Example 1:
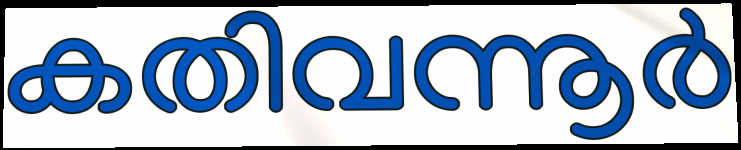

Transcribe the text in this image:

കതിവന്നൂർ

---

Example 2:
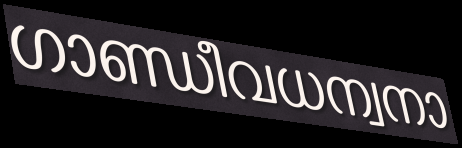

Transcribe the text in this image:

ഗാണ്ഡീവധന്വനാ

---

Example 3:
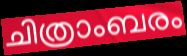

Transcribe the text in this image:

ചിത്രാംബരം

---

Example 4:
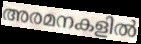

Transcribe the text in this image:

അരമനകളിൽ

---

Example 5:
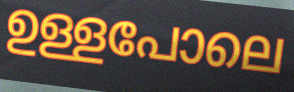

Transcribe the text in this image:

ഉള്ളപോലെ